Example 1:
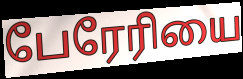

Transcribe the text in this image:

பேரேரியை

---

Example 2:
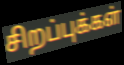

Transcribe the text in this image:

சிறப்புக்கள்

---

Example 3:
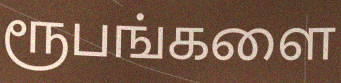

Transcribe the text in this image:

ரூபங்களை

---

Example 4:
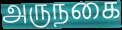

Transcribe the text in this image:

அருநகை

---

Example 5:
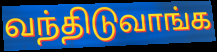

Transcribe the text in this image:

வந்திடுவாங்க